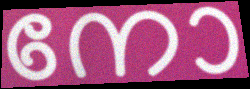
നോ